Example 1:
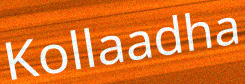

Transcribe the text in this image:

Kollaadha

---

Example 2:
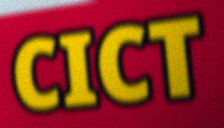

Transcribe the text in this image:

CICT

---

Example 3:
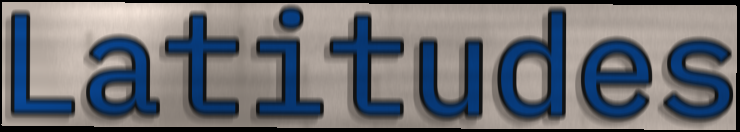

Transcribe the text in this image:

Latitudes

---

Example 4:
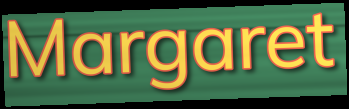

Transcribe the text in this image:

Margaret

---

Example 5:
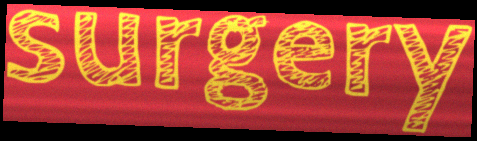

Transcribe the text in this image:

surgery